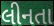
લીનતા